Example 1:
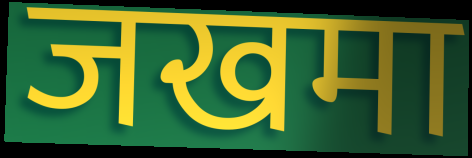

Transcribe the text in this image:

जखमा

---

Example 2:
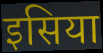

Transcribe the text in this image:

इसिया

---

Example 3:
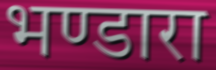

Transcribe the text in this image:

भण्डारा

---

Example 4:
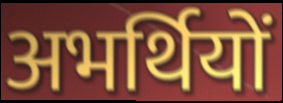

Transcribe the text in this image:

अभर्थियों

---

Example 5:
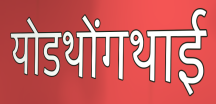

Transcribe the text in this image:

योडथोंगथाई